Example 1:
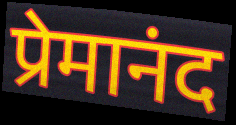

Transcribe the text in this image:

प्रेमानंद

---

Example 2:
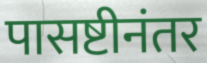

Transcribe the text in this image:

पासष्टीनंतर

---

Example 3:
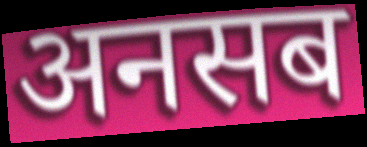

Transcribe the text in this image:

अनसब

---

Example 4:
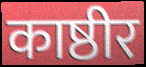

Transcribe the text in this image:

काष्ठीर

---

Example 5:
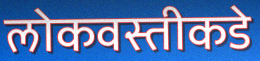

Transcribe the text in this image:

लोकवस्तीकडे